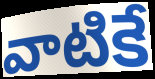
వాటికే